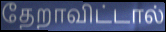
தேறாவிட்டால்